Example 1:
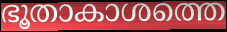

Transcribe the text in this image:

ഭൂതാകാശത്തെ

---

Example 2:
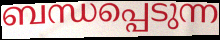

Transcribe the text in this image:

ബന്ധപ്പെടുന്ന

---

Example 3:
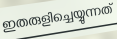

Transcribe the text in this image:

ഇതരുളിച്ചെയ്യുന്നത്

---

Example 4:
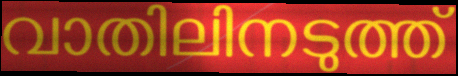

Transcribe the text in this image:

വാതിലിനടുത്ത്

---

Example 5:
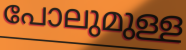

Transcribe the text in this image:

പോലുമുള്ള